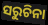
ସରୁଚିନା